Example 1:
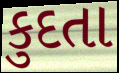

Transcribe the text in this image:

કુદતા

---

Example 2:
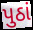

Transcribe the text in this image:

પુઠાં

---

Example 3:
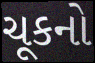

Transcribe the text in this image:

ચૂકનો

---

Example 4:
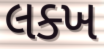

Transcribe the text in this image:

લક્ખ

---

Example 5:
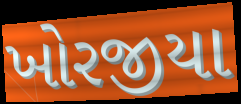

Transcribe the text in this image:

ખોરજીયા